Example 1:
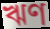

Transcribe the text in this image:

ঋণ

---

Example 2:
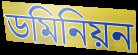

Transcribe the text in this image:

ডমিনিয়ন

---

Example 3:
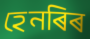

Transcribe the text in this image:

হেনৰিৰ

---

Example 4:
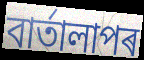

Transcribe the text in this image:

বাৰ্তালাপৰ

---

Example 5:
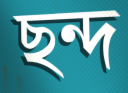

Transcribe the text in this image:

ছন্দ